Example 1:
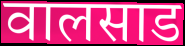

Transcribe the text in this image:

वालसाड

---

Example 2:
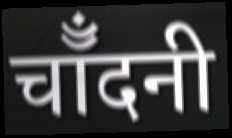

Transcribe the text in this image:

चॉँदनी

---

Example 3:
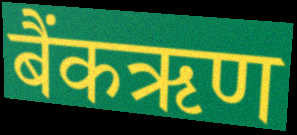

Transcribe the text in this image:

बैंकऋण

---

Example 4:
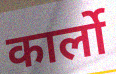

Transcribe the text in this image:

कार्लो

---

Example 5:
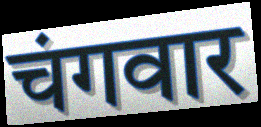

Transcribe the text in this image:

चंगवार